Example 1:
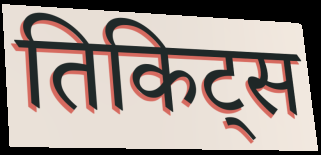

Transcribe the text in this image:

तिकिट्स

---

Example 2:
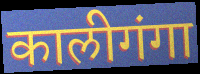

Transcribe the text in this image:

कालीगंगा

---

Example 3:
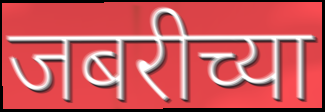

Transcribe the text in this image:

जबरीच्या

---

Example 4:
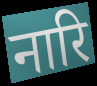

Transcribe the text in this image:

नारि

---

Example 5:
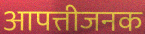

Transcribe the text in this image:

आपत्तीजनक